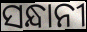
ସନ୍ଧାନୀ